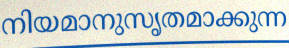
നിയമാനുസൃതമാക്കുന്ന